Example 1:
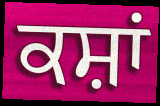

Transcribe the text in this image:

ਕਸ਼ਾਂ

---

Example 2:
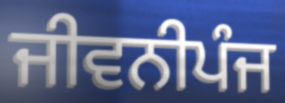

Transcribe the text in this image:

ਜੀਵਨੀਪੰਜ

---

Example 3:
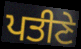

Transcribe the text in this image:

ਪਤੀਣੇ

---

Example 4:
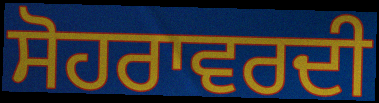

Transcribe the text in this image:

ਸੋਹਰਾਵਰਦੀ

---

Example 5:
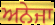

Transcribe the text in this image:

ਅਨੇਜਾ